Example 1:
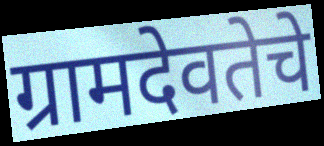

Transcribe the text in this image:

ग्रामदेवतेचे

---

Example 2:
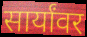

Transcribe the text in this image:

सार्यांवर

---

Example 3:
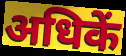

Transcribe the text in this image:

अधिकें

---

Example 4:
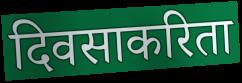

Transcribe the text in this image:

दिवसाकरिता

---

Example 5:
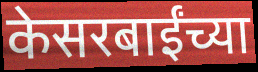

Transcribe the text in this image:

केसरबाईंच्या